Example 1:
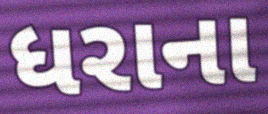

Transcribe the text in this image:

ધરાના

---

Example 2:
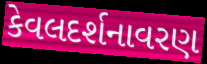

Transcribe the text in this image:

કેવલદર્શનાવરણ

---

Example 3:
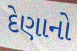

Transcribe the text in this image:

દેણાનો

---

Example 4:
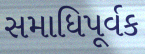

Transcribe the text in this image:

સમાધિપૂર્વક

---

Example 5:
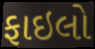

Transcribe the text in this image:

ફાઇલો